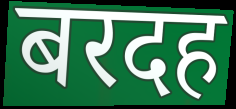
बरदह